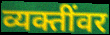
व्यक्तींवर